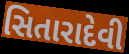
સિતારાદેવી